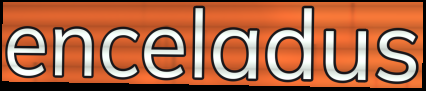
enceladus